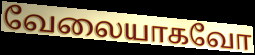
வேலையாகவோ